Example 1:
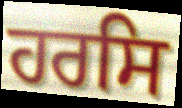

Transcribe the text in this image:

ਹਰਸਿ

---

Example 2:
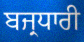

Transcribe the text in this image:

ਬਜ੍ਰਧਾਰੀ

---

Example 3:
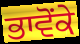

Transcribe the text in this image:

ਭਾਵੋਂਕੇ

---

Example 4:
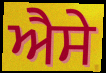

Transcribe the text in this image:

ਐੇਸੇ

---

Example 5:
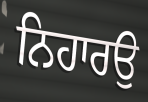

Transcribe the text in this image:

ਨਿਹਾਰਉ